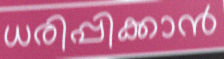
ധരിപ്പിക്കാൻ